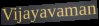
Vijayavaman